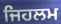
ਜਿਹਲਮ